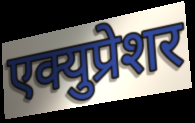
एक्युप्रेशर